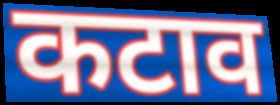
कटाव